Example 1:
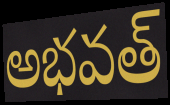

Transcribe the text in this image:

అభవత్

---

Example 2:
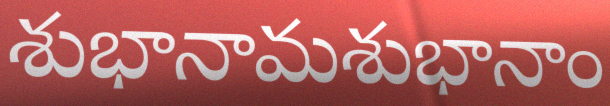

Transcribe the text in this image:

శుభానామశుభానాం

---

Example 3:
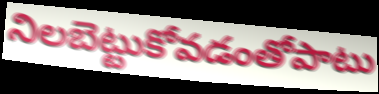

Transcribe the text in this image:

నిలబెట్టుకోవడంతోపాటు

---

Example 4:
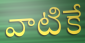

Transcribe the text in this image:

వాటికే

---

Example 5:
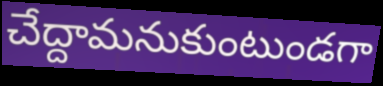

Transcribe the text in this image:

చేద్దామనుకుంటుండగా